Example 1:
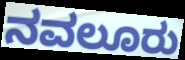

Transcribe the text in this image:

ನವಲೂರು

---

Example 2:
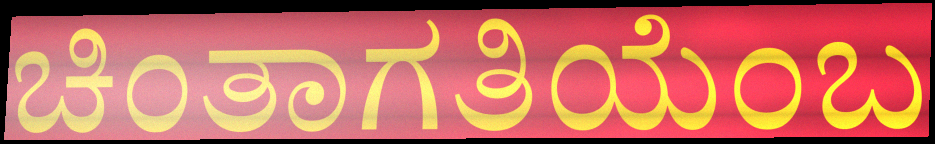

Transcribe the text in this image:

ಚಿಂತಾಗತಿಯೆಂಬ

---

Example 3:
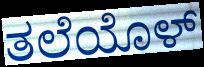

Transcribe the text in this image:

ತಲೆಯೊಳ್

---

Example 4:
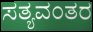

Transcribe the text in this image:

ಸತ್ಯವಂತರ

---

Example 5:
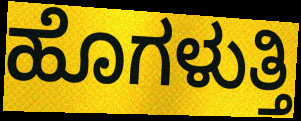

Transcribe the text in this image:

ಹೊಗಳುತ್ತಿ